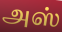
அஸ்